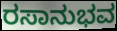
ರಸಾನುಭವ